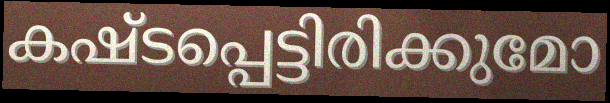
കഷ്ടപ്പെട്ടിരിക്കുമോ